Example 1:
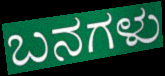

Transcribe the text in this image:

ಬನಗಳು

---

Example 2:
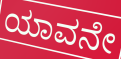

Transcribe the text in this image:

ಯಾವನೇ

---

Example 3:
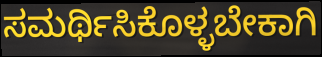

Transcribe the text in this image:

ಸಮರ್ಥಿಸಿಕೊಳ್ಳಬೇಕಾಗಿ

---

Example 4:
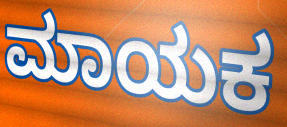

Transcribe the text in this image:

ಮಾಯಕ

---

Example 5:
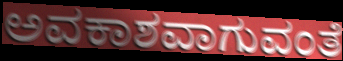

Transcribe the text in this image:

ಅವಕಾಶವಾಗುವಂತೆ